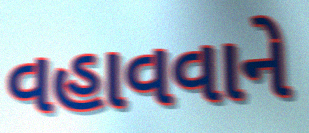
વહાવવાને